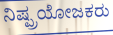
ನಿಷ್ಪ್ರಯೋಜಕರು